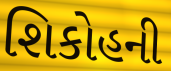
શિકોહની